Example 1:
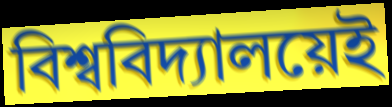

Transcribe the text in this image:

বিশ্ববিদ্যালয়েই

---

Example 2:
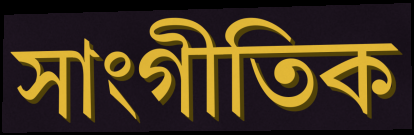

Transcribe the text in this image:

সাংগীতিক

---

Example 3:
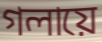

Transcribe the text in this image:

গলায়ে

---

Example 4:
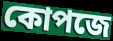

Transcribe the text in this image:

কোপজে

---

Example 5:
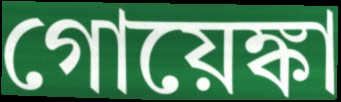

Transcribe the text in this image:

গোয়েঙ্কা